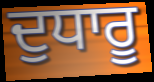
ਦੁਧਾਰੂ